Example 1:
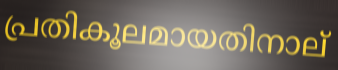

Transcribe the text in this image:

പ്രതികൂലമായതിനാല്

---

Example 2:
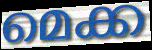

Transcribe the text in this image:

മെക്ക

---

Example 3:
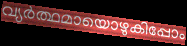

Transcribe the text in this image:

വ്യർത്ഥമായൊഴുകിപ്പോം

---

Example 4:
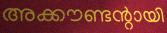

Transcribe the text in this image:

അക്കൗണ്ടന്റായി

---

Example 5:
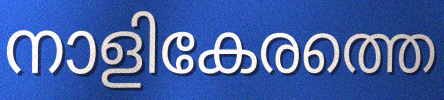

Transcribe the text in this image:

നാളികേരത്തെ